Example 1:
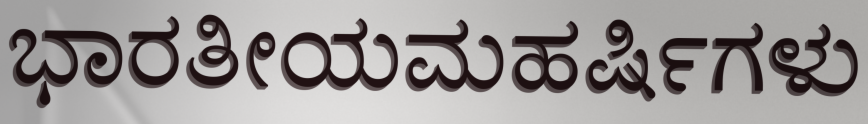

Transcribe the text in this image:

ಭಾರತೀಯಮಹರ್ಷಿಗಳು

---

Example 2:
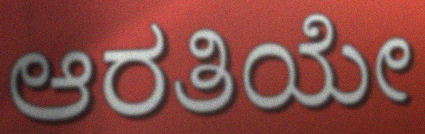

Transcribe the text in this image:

ಆರತಿಯೇ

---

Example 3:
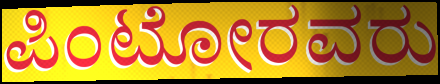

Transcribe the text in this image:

ಪಿಂಟೋರವರು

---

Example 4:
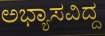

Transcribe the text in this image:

ಅಭ್ಯಾಸವಿದ್ದ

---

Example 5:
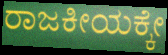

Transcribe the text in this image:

ರಾಜಕೀಯಕ್ಕೇ